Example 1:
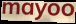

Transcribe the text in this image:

mayoo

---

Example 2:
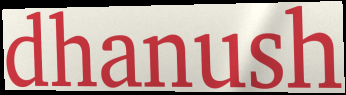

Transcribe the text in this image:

dhanush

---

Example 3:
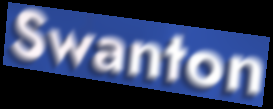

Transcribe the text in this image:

Swanton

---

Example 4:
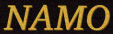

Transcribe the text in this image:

NAMO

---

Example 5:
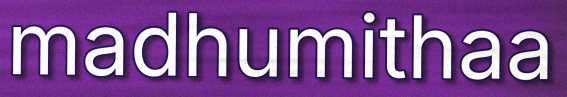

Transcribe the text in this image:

madhumithaa